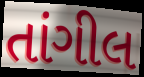
તાંગીલ